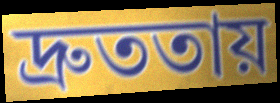
দ্রুততায়